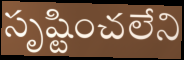
సృష్టించలేని